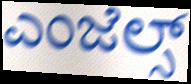
ಎಂಜೆಲ್ಸ್